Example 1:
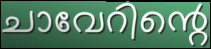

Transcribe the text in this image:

ചാവേറിന്റെ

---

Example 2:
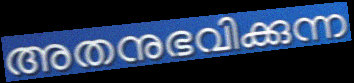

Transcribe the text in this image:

അതനുഭവിക്കുന്ന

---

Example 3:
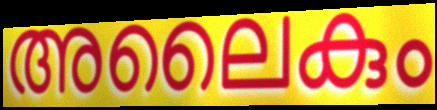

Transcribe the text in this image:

അലൈകും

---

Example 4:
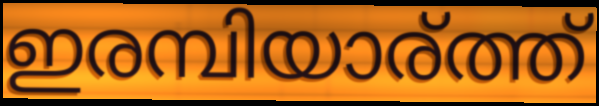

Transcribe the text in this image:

ഇരമ്പിയാര്ത്ത്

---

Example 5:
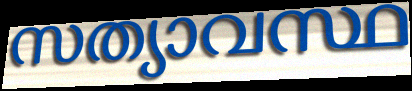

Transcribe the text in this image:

സത്യാവസ്ഥ